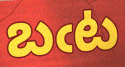
బఁట